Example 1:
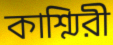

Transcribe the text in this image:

কাশ্মিরী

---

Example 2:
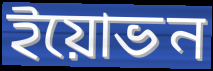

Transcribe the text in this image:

ইয়োভন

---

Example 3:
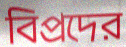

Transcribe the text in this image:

বিপ্রদের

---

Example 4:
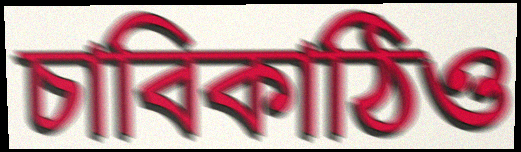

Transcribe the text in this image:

চাবিকাঠিও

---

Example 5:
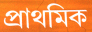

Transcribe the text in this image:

প্রাথমিক